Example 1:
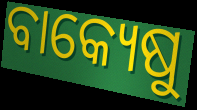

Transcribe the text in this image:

ବାକ୍ୟେଷୁ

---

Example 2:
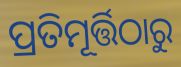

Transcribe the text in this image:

ପ୍ରତିମୂର୍ତ୍ତିଠାରୁ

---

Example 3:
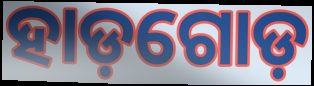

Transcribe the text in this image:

ହାଡ଼ଗୋଡ଼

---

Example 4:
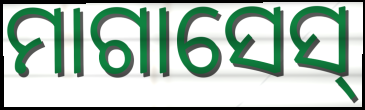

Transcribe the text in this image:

ମାଗାସେସ୍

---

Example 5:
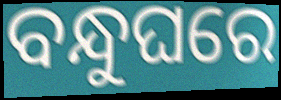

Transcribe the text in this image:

ବନ୍ଧୁଘରେ